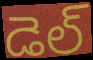
డెల్